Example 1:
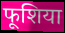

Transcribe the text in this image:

फूशिया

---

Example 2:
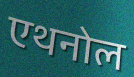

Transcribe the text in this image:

एथनोल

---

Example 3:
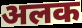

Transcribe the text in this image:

अलक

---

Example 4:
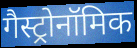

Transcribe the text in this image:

गैस्ट्रोनॉमिक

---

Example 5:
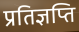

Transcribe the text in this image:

प्रतिज्ञप्ति